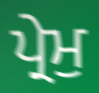
ਪ੍ਰੇਮੁ